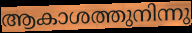
ആകാശത്തുനിന്നു